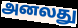
அனலது